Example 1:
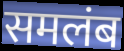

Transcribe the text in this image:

समलंब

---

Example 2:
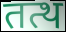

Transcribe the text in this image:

तत्थ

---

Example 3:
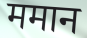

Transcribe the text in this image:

ममान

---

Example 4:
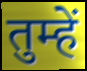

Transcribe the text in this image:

तुम्‍हें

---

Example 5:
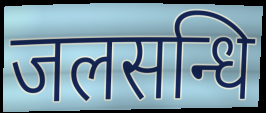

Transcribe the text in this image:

जलसन्धि